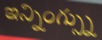
ఇన్నింగ్స్ను